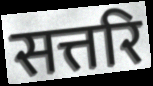
सत्तरि